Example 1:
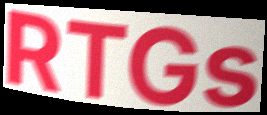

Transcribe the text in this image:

RTGs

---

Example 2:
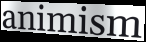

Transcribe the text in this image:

animism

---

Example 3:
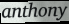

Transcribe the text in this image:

anthony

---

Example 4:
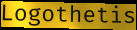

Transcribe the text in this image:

Logothetis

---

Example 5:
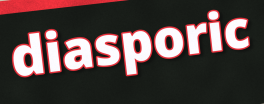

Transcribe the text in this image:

diasporic